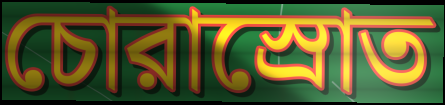
চোরাস্রোত